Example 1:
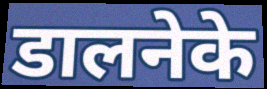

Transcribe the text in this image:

डालनेके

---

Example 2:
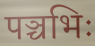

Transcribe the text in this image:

पञ्चभिः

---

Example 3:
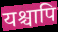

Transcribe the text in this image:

यश्चापि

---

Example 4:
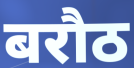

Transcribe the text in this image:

बरौठ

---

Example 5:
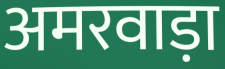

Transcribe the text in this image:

अमरवाड़ा